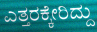
ಎತ್ತರಕ್ಕೇರಿದ್ದು